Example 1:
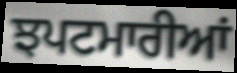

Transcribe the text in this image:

ਝਪਟਮਾਰੀਆਂ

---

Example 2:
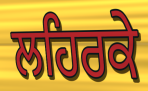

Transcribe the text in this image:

ਲਹਿਰਕੇ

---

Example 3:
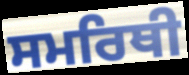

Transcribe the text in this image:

ਸਮਰਿਥੀ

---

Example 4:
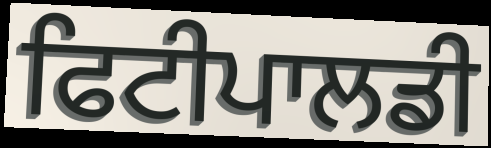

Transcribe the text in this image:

ਫਿਟੀਪਾਲਡੀ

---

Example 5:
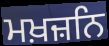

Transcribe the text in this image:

ਮਖ਼ਜ਼ਨਿ